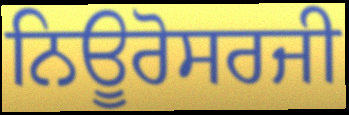
ਨਿਊਰੋਸਰਜੀ